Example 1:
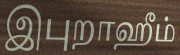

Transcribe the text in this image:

இபுறாஹீம்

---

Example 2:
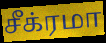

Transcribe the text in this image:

சீக்ரமா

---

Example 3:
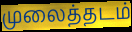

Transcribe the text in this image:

முலைத்தடம்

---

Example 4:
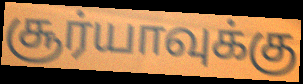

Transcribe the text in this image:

சூர்யாவுக்கு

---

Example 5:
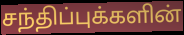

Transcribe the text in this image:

சந்திப்புக்களின்